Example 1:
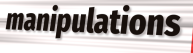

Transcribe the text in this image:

manipulations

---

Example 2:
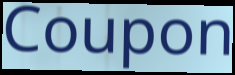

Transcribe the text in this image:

Coupon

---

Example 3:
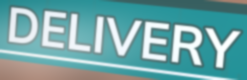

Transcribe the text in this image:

DELIVERY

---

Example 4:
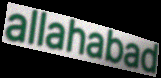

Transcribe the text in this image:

allahabad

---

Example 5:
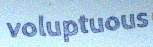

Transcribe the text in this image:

voluptuous